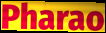
Pharao